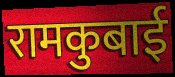
रामकुबाई